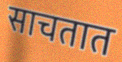
साचतात